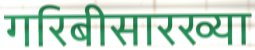
गरिबीसारख्या